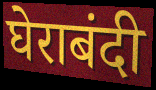
घेराबंदी